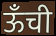
ऊँची